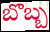
బొబ్బ